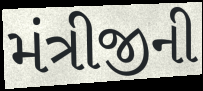
મંત્રીજીની